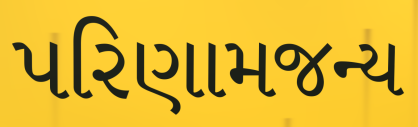
પરિણામજન્ય